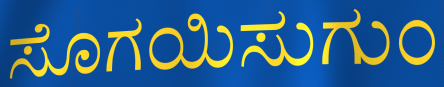
ಸೊಗಯಿಸುಗುಂ